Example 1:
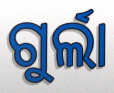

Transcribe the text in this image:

ଗୁର୍ଲା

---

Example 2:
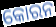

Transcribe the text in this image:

କୋରନ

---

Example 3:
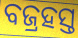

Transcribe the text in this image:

ବଜ୍ରହସ୍ତ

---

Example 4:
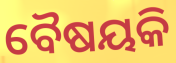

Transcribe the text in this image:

ବୈଷୟକି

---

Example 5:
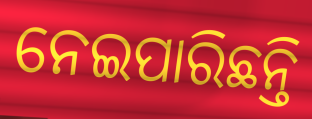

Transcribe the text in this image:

ନେଇପାରିଛନ୍ତି